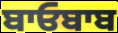
ਬਾਓਬਾਬ